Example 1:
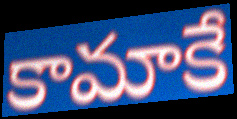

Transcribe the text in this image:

కామాకే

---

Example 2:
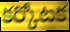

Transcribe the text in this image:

కర్కోటక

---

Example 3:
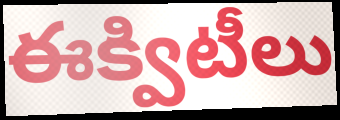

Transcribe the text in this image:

ఈక్విటీలు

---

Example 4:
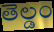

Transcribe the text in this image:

తెల్డం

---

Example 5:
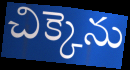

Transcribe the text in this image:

చిక్కెను